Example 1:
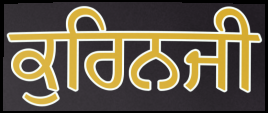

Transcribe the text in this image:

ਕੁਰਿਨਜੀ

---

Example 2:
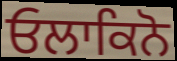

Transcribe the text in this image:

ਓਲਾਕਿਨੋ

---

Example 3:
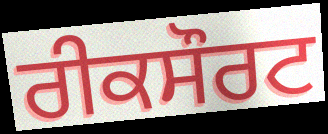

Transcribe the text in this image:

ਰੀਕਸੌਰਟ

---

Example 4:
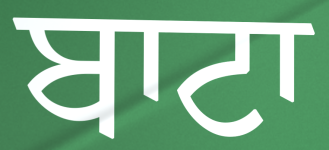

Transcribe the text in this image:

ਬਾਟਾ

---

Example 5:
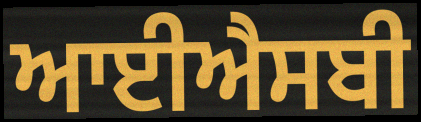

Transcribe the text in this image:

ਆਈਐਸਬੀ